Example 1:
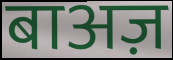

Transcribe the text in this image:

बाअज़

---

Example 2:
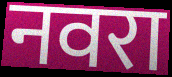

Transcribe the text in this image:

नवरा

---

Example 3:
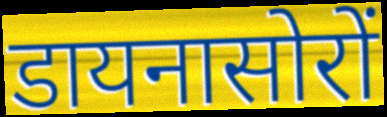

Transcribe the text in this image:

डायनासोरों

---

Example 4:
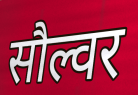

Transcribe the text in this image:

सौल्वर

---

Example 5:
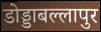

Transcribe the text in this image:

डोड्डाबल्लापुर